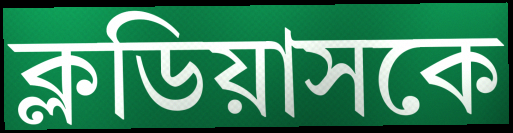
ক্লডিয়াসকে